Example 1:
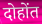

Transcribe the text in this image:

दोहोंत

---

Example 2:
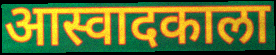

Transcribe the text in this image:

आस्वादकाला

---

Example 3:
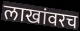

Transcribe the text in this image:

लाखांवरच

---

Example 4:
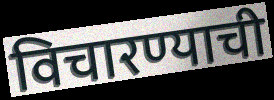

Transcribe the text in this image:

विचारण्याची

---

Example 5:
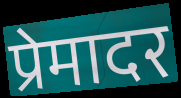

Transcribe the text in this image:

प्रेमादर